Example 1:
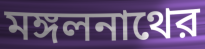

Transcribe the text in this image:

মঙ্গলনাথের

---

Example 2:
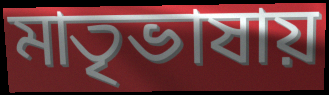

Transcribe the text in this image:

মাতৃভাষায়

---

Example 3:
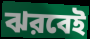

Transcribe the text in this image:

ঝরবেই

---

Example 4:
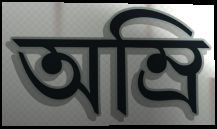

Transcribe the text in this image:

অম্রি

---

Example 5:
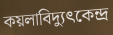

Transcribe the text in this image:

কয়লাবিদ্যুৎকেন্দ্র